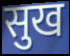
सुख